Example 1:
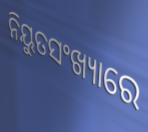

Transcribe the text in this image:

ନିୟୁତସଂଖ୍ୟାରେ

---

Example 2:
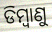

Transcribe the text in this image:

ଡିମ୍ୱାଣୁ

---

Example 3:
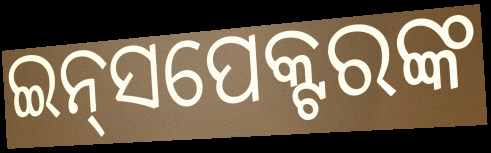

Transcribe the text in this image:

ଇନ୍‍ସପେକ୍ଟରଙ୍କ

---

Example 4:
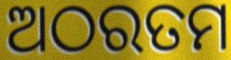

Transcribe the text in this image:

ଅଠରତମ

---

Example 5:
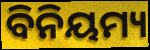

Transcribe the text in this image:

ବିନିୟମ୍ୟ